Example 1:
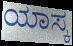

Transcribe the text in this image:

ಯಾಸ್ಕ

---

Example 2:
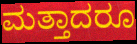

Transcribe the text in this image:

ಮತ್ತಾದರೂ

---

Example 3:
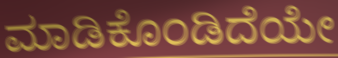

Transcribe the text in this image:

ಮಾಡಿಕೊಂಡಿದೆಯೇ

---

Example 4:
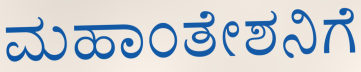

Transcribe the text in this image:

ಮಹಾಂತೇಶನಿಗೆ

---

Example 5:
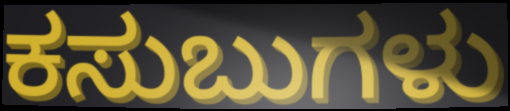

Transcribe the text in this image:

ಕಸುಬುಗಳು